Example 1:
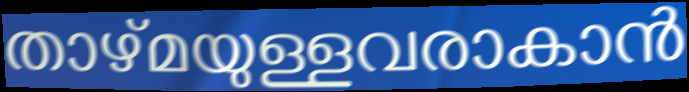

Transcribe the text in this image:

താഴ്മയുള്ളവരാകാൻ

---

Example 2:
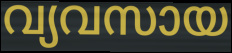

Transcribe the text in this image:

വ്യവസായ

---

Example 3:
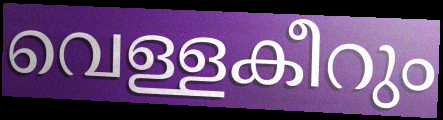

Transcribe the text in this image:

വെള്ളകീറും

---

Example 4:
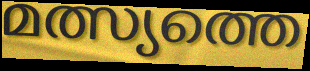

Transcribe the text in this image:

മത്സ്യത്തെ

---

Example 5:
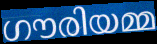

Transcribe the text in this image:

ഗൗരിയമ്മ